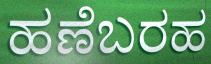
ಹಣೆಬರಹ